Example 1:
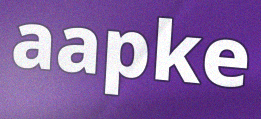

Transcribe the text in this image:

aapke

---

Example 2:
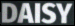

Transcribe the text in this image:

DAISY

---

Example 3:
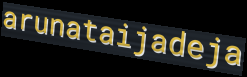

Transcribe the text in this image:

arunataijadeja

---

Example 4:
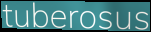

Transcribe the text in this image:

tuberosus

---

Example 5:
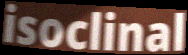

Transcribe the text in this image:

isoclinal